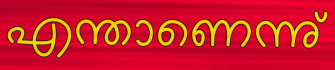
എന്താണെന്നു്